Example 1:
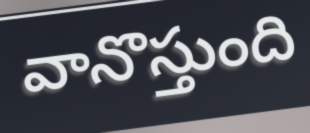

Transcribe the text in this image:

వానొస్తుంది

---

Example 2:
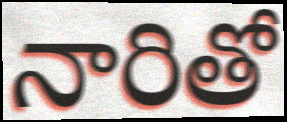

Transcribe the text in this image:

నారితో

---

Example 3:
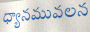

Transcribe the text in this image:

ధ్యానమువలన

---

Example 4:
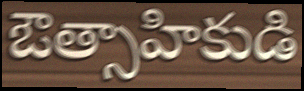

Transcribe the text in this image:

ఔత్సాహికుడి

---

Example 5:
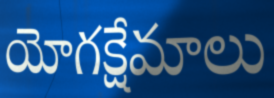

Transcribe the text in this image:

యోగక్షేమాలు